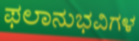
ಫಲಾನುಭವಿಗಳ